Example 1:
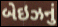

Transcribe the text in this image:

બેઇઝનું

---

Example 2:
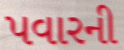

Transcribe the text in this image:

પવારની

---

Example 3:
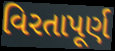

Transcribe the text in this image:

વિરતાપૂર્ણ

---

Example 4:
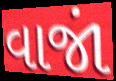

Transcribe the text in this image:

વાજાં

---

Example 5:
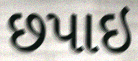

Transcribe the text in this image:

છપાઇ